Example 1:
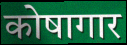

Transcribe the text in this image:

कोषागार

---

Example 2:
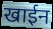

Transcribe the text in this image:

खाईन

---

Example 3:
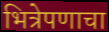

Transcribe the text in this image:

भित्रेपणाचा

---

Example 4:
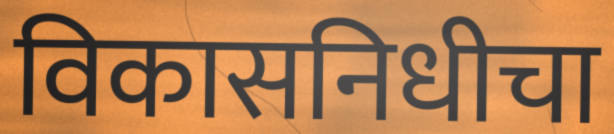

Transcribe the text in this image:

विकासनिधीचा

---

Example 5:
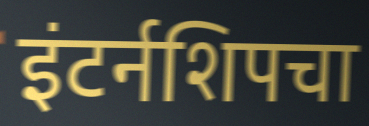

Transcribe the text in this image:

इंटर्नशिपचा